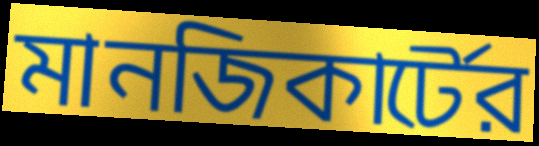
মানজিকার্টের